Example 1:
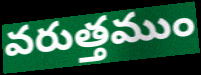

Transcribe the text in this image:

వరుత్తముం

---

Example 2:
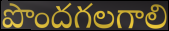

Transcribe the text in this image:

పొందగలగాలి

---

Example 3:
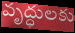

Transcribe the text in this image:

వృద్ధులకు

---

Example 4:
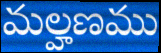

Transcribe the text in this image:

మల్హణము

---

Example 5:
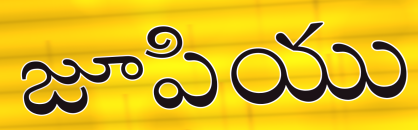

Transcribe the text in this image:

జూపియు